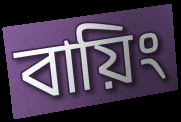
বায়িং